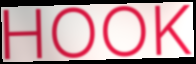
HOOK